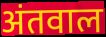
अंतवाल